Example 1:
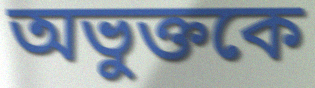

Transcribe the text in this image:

অভুক্তকে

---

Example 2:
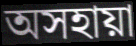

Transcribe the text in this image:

অসহায়া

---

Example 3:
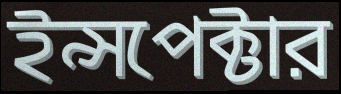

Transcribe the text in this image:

ইন্সপেক্টার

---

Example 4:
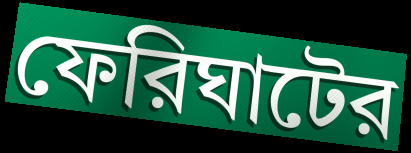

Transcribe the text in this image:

ফেরিঘাটের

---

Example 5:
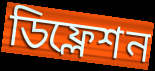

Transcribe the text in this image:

ডিফ্লেশন